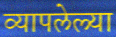
व्यापलेल्या